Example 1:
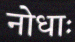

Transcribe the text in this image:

नोधाः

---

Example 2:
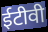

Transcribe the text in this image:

ईटीवी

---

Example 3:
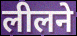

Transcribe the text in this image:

लीलने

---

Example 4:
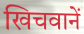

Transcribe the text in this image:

खिचवानें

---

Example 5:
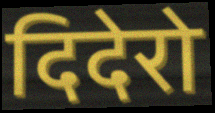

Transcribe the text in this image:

दिदेरो